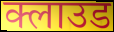
क्लाउड